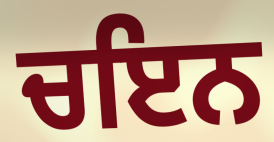
ਚਇਨ